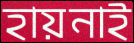
হায়নাই